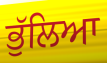
ਭੁੱਲਿਆ